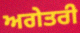
ਅਗੇਤਰੀ